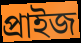
প্ৰাইজ